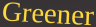
Greener